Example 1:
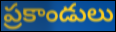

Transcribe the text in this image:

ప్రకాండులు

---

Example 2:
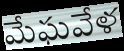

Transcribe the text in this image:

మేఘవేళ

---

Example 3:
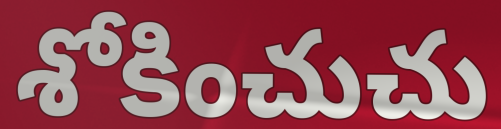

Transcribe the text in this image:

శోకించుచు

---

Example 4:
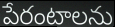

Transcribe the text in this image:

పేరంటాలను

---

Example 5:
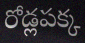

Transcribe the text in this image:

రోడ్లపక్క